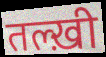
तल्ख़ी